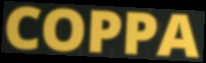
COPPA